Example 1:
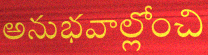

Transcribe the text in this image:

అనుభవాల్లోంచి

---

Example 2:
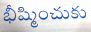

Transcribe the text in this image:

భీష్మించుకు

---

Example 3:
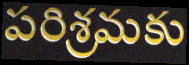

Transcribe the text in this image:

పరిశ్రమకు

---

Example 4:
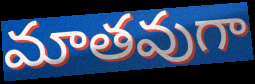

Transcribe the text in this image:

మాతవుగా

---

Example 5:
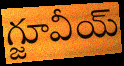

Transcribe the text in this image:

గ్జూవీయ్